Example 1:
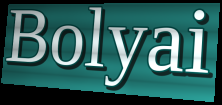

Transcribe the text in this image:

Bolyai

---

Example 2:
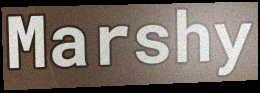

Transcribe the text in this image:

Marshy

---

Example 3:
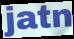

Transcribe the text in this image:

jatn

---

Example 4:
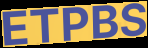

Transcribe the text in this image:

ETPBS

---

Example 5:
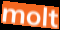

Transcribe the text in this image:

molt